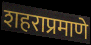
शहराप्रमाणे